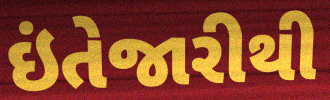
ઇંતેજારીથી